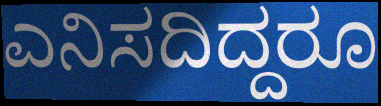
ಎನಿಸದಿದ್ದರೂ